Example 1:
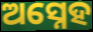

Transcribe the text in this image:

ଅସ୍ନେହ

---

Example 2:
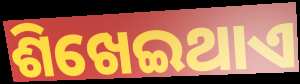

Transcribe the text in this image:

ଶିଖେଇଥାଏ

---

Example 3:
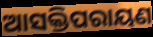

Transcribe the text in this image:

ଆସକ୍ତିପରାୟଣ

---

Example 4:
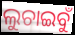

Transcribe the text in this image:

ଲୁଚାଇବୁଁ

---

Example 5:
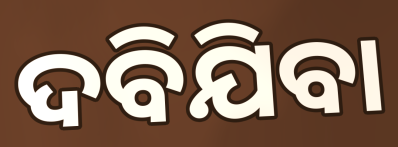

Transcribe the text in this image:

ଦବିଯିବା